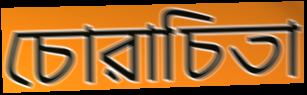
চোৱাচিতা